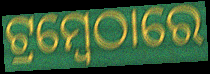
ଟ୍ରମ୍ବେଠାରେ